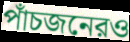
পাঁচজনেরও